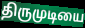
திருமுடியை